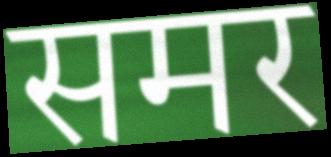
समर